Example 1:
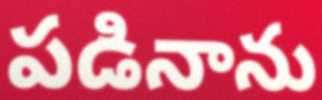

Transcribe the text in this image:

పడినాను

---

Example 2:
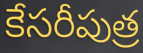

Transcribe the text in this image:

కేసరీపుత్ర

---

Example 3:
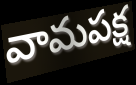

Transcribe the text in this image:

వామపక్ష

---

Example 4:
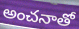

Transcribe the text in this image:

అంచనాతో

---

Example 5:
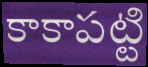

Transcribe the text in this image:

కాకాపట్టి